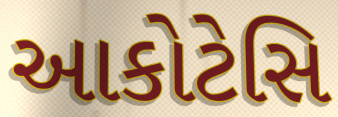
આકોટેસિ